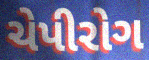
ચેપીરોગ